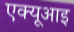
एक्यूआइ